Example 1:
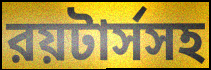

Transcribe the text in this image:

রয়টার্সসহ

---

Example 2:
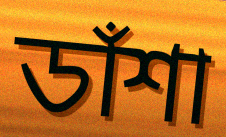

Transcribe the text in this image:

ডাঁশা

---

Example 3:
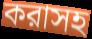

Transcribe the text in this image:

করাসহ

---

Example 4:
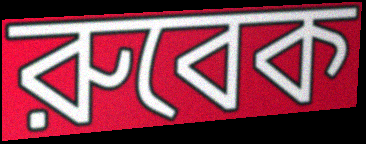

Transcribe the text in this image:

রুবেক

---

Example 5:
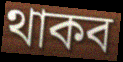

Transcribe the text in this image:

থাকব